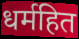
धर्महित